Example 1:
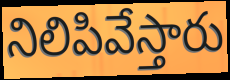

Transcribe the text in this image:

నిలిపివేస్తారు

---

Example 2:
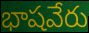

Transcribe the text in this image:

భాషవేరు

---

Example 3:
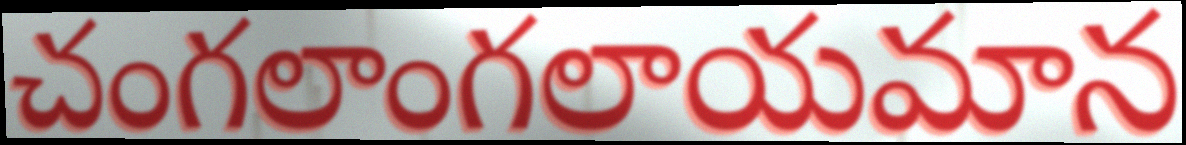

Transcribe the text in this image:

చంగలాంగలాయమాన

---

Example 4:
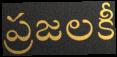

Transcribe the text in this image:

ప్రజలకీ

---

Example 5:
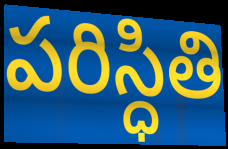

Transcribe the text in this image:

పరిస్ధితి